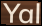
Yal